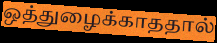
ஒத்துழைக்காததால்